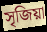
সৃজিয়া